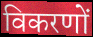
विकरणों